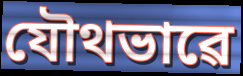
যৌথভাৱে